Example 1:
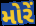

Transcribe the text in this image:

મોરેં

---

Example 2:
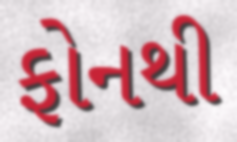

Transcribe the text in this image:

ફોનથી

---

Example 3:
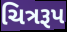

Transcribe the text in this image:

ચિત્રરૂપ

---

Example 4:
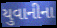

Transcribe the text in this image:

યુવાનીના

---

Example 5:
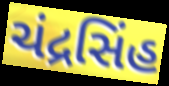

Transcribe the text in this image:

ચંદ્રસિંહ